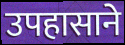
उपहासाने